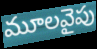
మూలవైపు